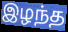
இழந்த